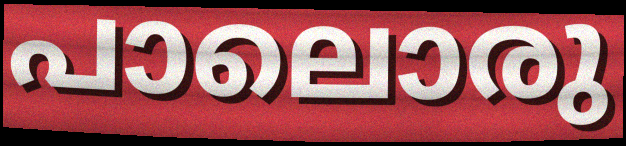
പാലൊരു